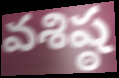
వశిష్ఠ